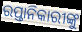
ରପ୍ତାନିକାରୀଙ୍କୁ